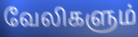
வேலிகளும்